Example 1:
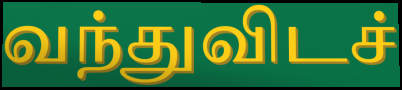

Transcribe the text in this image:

வந்துவிடச்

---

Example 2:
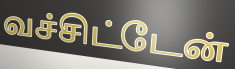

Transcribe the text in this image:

வச்சிட்டேன்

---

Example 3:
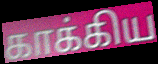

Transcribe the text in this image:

காக்கிய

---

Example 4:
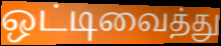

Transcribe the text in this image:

ஒட்டிவைத்து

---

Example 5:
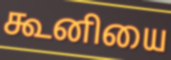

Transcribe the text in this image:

கூனியை